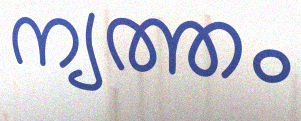
ന്യത്തം